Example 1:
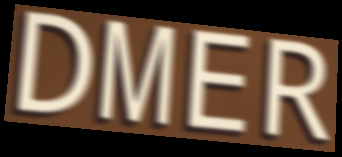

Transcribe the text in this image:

DMER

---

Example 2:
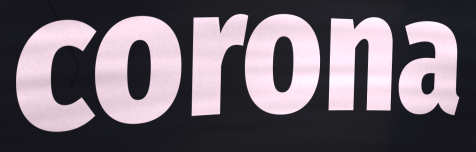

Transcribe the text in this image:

corona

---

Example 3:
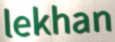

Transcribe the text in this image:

lekhan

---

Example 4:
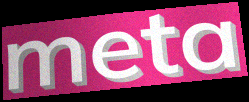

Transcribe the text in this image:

meta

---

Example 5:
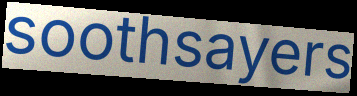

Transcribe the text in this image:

soothsayers